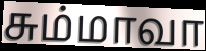
சும்மாவா